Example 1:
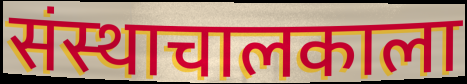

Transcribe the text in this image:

संस्थाचालकाला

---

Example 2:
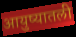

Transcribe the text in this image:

आयुष्यातली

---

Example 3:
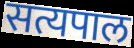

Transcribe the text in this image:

सत्यपाल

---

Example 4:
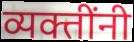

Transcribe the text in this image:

व्यक्तींनी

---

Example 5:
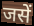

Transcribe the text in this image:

जसें